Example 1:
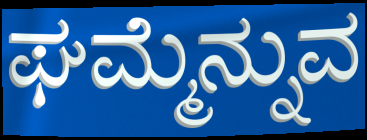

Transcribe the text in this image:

ಘಮ್ಮೆನ್ನುವ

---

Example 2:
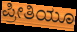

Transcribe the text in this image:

ಪ್ರೀತಿಯೂ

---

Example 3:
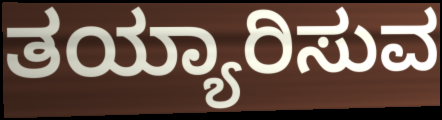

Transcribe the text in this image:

ತಯ್ಯಾರಿಸುವ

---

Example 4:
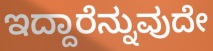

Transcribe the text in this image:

ಇದ್ದಾರೆನ್ನುವುದೇ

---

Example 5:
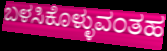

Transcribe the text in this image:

ಬಳಸಿಕೊಳ್ಳುವಂತಹ